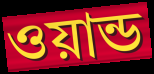
ওয়ান্ড